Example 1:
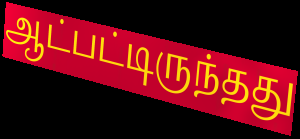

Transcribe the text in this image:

ஆட்பட்டிருந்தது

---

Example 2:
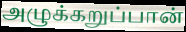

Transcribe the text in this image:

அழுக்கறுப்பான்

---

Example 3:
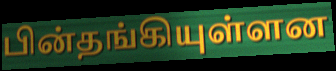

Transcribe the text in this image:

பின்தங்கியுள்ளன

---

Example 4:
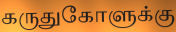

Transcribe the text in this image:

கருதுகோளுக்கு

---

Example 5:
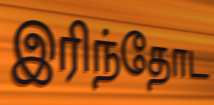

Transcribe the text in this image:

இரிந்தோட